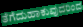
ತೆಗೆದುಹಾಕುವುದರಿಂದ